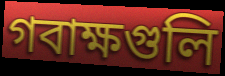
গবাক্ষগুলি